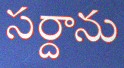
సర్దాను